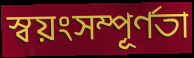
স্বয়ংসম্পূর্ণতা